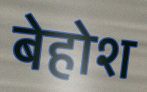
बेहोश